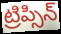
ట్రిప్సిన్